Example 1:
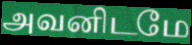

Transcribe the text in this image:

அவனிடமே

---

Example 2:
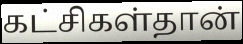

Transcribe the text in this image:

கட்சிகள்தான்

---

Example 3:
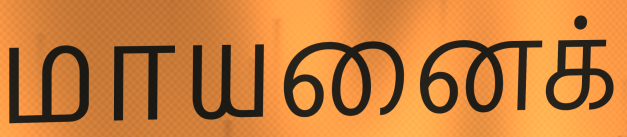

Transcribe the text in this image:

மாயனைக்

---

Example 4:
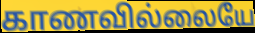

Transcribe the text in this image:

காணவில்லையே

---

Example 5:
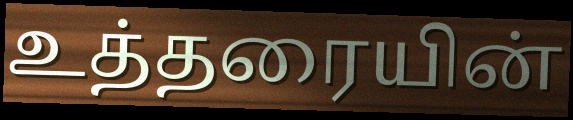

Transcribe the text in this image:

உத்தரையின்